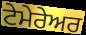
ਟੇਮੇਰੇਅਰ